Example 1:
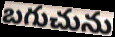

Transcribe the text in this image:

బగుచును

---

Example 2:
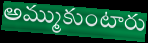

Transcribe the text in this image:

అమ్ముకుంటారు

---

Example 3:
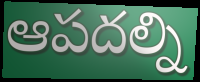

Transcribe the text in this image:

ఆపదల్ని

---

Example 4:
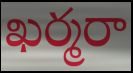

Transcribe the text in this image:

ఖర్మరా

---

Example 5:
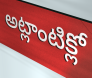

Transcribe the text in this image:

అట్లాంటిక్లో